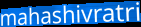
mahashivratri